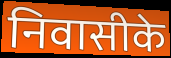
निवासीके